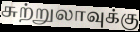
சுற்றுலாவுக்கு